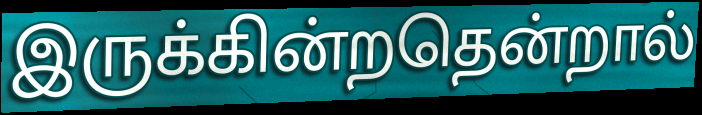
இருக்கின்றதென்றால்